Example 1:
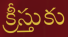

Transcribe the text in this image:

క్రీస్తుకు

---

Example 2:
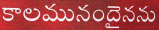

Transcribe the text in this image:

కాలమునందైనను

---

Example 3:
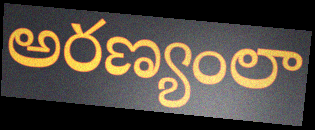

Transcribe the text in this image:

అరణ్యంలా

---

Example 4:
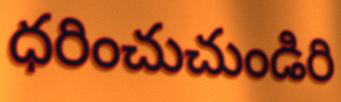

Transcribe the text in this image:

ధరించుచుండిరి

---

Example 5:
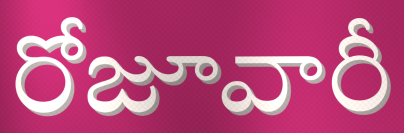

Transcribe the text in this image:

రోజూవారీ